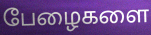
பேழைகளை